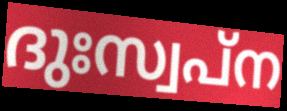
ദുഃസ്വപ്ന